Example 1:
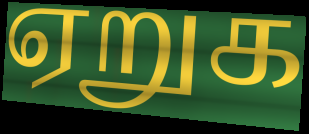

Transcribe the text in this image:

ஏறுக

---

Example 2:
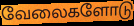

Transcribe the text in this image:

வேலைகளோடு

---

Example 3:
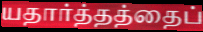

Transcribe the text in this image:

யதார்த்தத்தைப்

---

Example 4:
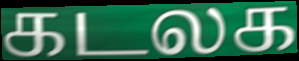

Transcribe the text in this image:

கடலக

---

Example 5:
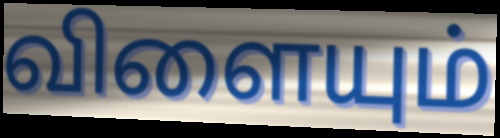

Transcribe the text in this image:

விளையும்